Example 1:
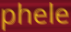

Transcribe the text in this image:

phele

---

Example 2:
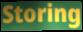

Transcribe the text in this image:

Storing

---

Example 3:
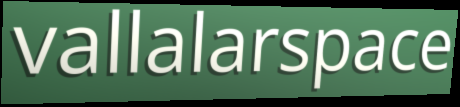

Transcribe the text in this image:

vallalarspace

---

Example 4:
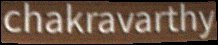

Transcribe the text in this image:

chakravarthy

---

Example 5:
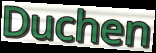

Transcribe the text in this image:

Duchen